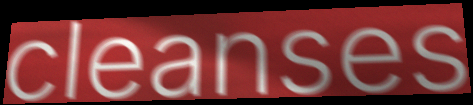
cleanses